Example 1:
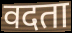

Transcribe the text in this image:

वदता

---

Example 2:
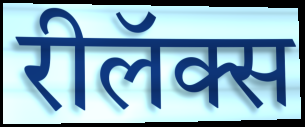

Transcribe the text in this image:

रीलॅक्स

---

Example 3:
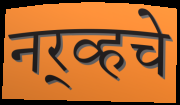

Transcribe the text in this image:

नर्व्हचे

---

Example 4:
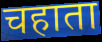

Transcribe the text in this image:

चहाता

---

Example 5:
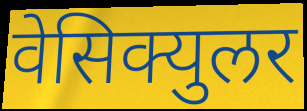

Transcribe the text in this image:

वेसिक्युलर